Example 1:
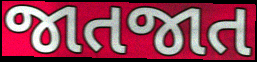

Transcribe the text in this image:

જાતજાત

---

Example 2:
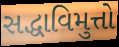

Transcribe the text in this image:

સદ્ધાવિમુત્તો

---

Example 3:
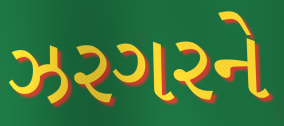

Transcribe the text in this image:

ઝરગરને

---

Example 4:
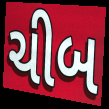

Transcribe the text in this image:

ચીબ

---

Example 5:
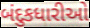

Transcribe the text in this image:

બંદુકધારીઓ